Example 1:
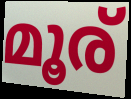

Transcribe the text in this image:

മൂര്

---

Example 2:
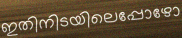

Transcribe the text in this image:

ഇതിനിടയിലെപ്പോഴോ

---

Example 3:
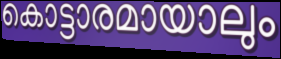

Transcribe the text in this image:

കൊട്ടാരമായാലും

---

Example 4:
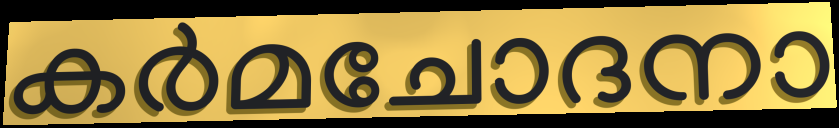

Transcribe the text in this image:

കർമചോദനാ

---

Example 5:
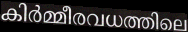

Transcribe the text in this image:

കിർമ്മീരവധത്തിലെ